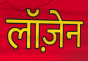
लॉज़ेन